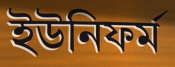
ইউনিফৰ্ম